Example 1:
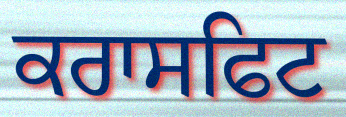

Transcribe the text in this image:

ਕਰਾਸਫਿਟ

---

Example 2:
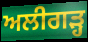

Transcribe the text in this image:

ਅਲੀਗੜ੍ਹ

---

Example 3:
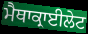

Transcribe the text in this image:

ਮੈਥਾਕ੍ਰਾਈਲੇਟ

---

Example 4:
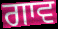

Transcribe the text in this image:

ਗਾਵ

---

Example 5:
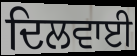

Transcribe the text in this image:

ਦਿਲਵਾਈ